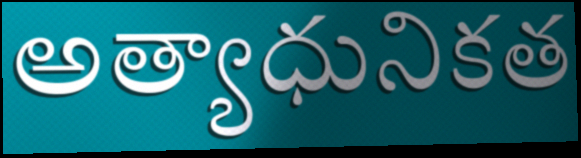
అత్యాధునికత